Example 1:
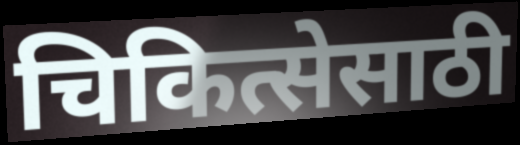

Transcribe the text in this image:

चिकित्सेसाठी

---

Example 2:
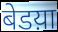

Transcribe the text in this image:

बेडय़ा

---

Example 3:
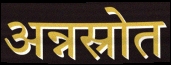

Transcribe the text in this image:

अन्नस्रोत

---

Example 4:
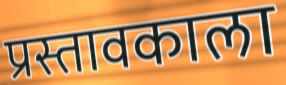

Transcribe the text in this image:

प्रस्तावकाला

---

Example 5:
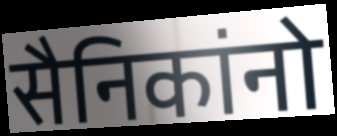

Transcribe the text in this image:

सैनिकांनो